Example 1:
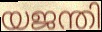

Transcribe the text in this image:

യജന്തി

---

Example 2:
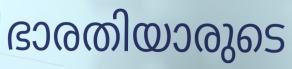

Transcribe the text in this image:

ഭാരതിയാരുടെ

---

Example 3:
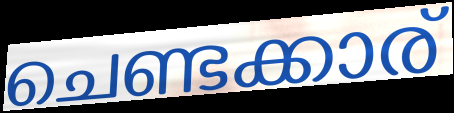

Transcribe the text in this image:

ചെണ്ടക്കാര്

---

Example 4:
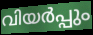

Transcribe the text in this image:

വിയർപ്പും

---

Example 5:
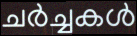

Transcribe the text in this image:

ചർച്ചകൾ